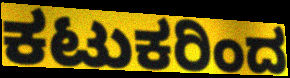
ಕಟುಕರಿಂದ